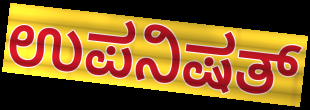
ಉಪನಿಷತ್